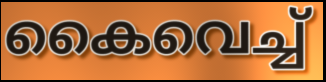
കൈവെച്ച്